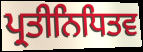
ਪ੍ਰਤੀਨਿਧਿਤਵ